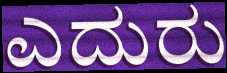
ಎದುರು